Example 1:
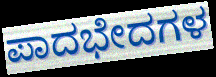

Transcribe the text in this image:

ಪಾದಭೇದಗಳ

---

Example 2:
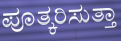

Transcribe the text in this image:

ಪೂತ್ಕರಿಸುತ್ತಾ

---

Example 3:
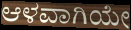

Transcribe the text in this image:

ಆಳವಾಗಿಯೇ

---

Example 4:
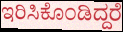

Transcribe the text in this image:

ಇರಿಸಿಕೊಂಡಿದ್ದರೆ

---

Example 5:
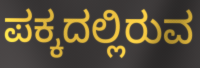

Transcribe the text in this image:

ಪಕ್ಕದಲ್ಲಿರುವ